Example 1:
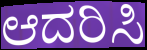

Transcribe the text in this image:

ಆದರಿಸಿ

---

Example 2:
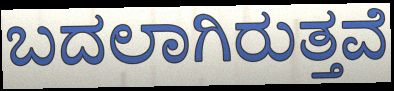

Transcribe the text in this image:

ಬದಲಾಗಿರುತ್ತವೆ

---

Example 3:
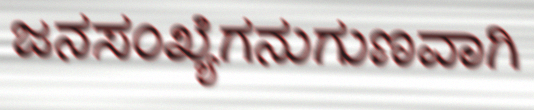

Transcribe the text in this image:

ಜನಸಂಖ್ಯೆಗನುಗುಣವಾಗಿ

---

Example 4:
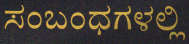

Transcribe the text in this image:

ಸಂಬಂಧಗಳಲ್ಲಿ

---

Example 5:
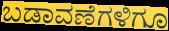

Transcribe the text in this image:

ಬಡಾವಣೆಗಳಿಗೂ